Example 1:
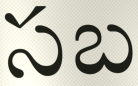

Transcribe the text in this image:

సబ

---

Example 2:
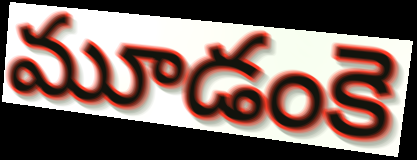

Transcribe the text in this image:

మూడంకె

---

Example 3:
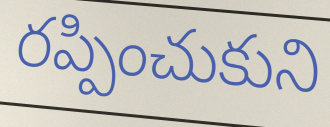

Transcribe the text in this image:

రప్పించుకుని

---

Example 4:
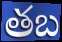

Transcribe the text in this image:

తబ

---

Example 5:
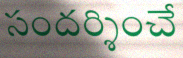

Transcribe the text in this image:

సందర్శించే